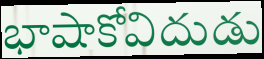
భాషాకోవిదుడు